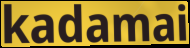
kadamai